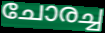
ചോരച്ച